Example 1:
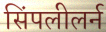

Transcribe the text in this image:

सिंपलीलर्न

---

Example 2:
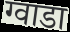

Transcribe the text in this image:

ग्वाडा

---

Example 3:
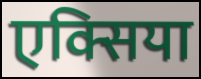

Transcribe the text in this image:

एक्सिया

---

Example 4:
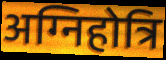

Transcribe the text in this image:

अग्निहोत्रि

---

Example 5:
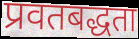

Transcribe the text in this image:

प्रवतबद्धता